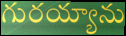
గురయ్యాను